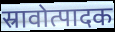
स्रावोत्पादक